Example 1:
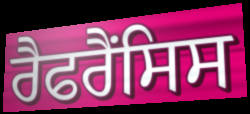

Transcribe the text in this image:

ਰੈਫਰੈਂਸਿਸ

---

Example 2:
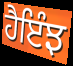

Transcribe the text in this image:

ਹੈਇੰਝ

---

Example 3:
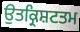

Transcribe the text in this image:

ਉਤਕ੍ਰਿਸ਼ਟਤਮ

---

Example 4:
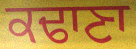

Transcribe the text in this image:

ਕਢਾਣਾ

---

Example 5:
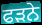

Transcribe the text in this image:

ਫੜਨੇ